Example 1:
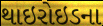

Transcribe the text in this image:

થાઇરોઇડના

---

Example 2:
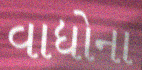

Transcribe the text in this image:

વાદ્યોના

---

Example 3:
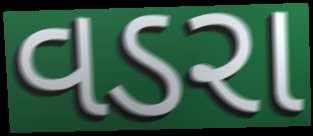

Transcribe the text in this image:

વડરા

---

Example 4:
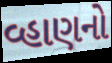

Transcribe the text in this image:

વ્હાણનો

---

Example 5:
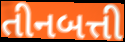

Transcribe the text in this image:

તીનબત્તી